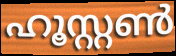
ഹൂസ്റ്റൺ